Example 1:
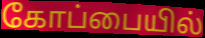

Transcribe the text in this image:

கோப்பையில்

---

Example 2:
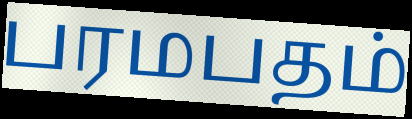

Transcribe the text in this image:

பரமபதம்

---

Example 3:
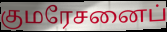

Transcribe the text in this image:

குமரேசனைப்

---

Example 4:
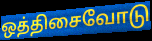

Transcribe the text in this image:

ஒத்திசைவோடு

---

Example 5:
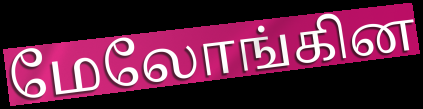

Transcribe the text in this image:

மேலோங்கின